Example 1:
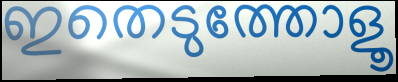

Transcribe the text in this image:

ഇതെടുത്തോളൂ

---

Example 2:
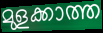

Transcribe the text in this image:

മുളക്കാത്ത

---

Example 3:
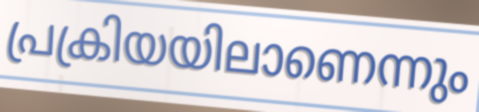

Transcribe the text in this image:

പ്രക്രിയയിലാണെന്നും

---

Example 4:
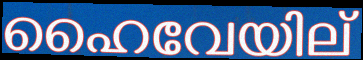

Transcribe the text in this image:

ഹൈവേയില്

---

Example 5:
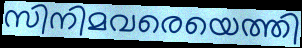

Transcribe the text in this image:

സിനിമവരെയെത്തി